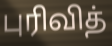
புரிவித்